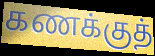
கணக்குத்